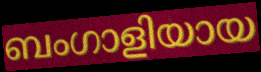
ബംഗാളിയായ